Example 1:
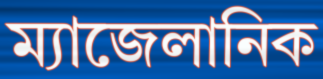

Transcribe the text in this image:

ম্যাজেলানিক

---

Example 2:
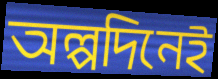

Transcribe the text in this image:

অল্পদিনেই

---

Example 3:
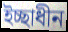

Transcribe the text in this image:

ইচ্ছাধীন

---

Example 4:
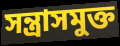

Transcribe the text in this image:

সন্ত্রাসমুক্ত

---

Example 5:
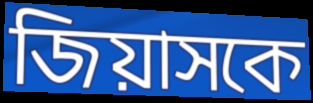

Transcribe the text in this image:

জিয়াসকে